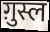
ग़ुस्ल